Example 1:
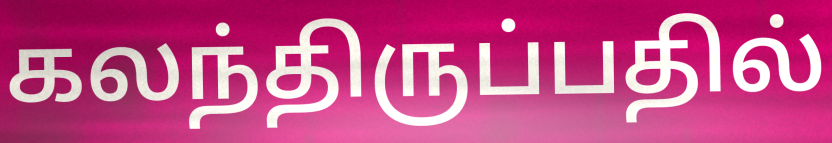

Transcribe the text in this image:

கலந்திருப்பதில்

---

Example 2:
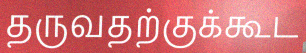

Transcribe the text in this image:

தருவதற்குக்கூட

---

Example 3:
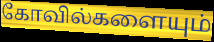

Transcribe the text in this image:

கோவில்களையும்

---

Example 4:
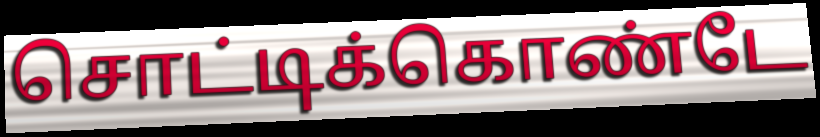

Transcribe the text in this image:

சொட்டிக்கொண்டே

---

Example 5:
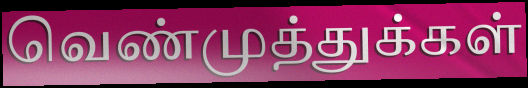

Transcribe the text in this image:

வெண்முத்துக்கள்